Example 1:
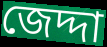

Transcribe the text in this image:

জেদ্দা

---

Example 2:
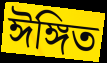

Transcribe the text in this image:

ঈঙ্গিত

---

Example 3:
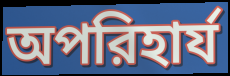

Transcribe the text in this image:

অপরিহার্য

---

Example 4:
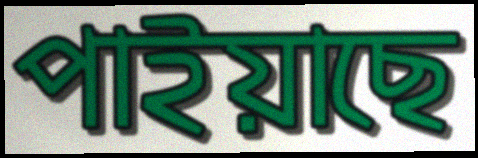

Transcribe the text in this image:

পাইয়াছে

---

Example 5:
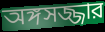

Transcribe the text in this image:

অঙ্গসজ্জার